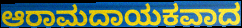
ಆರಾಮದಾಯಕವಾದ